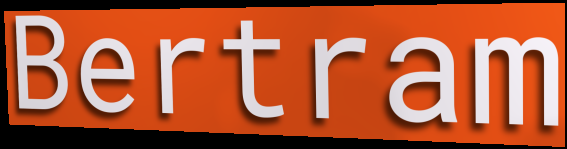
Bertram